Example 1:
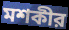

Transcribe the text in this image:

মশকীর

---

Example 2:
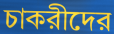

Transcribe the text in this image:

চাকরীদের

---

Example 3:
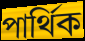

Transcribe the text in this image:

পার্থিক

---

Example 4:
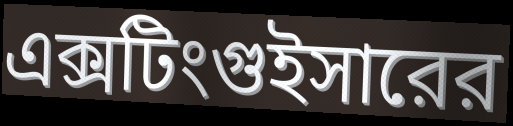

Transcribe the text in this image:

এক্সটিংগুইসারের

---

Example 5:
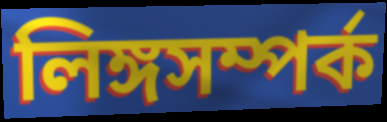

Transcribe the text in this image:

লিঙ্গসম্পর্ক